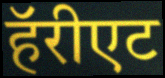
हॅरीएट